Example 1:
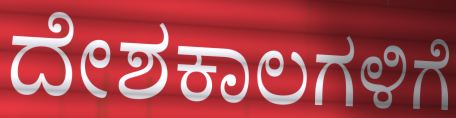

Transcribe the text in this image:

ದೇಶಕಾಲಗಳಿಗೆ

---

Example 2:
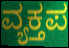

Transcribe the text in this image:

ವ್ಯಕ್ತಪ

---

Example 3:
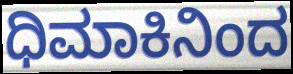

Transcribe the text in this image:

ಧಿಮಾಕಿನಿಂದ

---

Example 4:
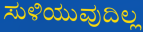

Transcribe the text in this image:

ಸುಳಿಯುವುದಿಲ್ಲ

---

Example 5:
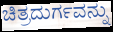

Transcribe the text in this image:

ಚಿತ್ರದುರ್ಗವನ್ನು